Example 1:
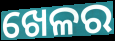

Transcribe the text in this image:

ଖେଳର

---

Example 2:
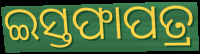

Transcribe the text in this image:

ଇସ୍ତଫାପତ୍ର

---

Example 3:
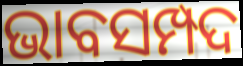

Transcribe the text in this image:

ଭାବସମ୍ପଦ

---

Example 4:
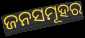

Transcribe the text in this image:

ଜନସମୂହର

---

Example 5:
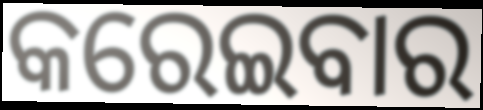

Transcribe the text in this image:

କରେଇବାର